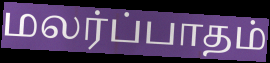
மலர்ப்பாதம்